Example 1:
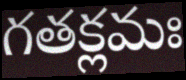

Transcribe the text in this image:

గతక్లమః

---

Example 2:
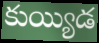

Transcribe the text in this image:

కుయ్యిడ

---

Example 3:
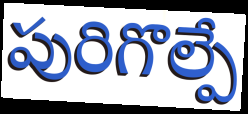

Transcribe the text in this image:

పురిగొల్పే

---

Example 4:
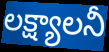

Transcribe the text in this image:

లక్ష్యాలనీ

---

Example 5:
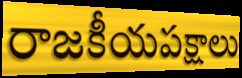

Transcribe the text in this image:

రాజకీయపక్షాలు